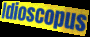
Idioscopus